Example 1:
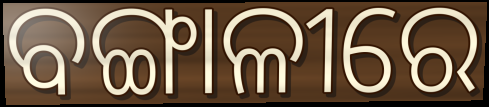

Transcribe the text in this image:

ବଙ୍ଗାଳୀରେ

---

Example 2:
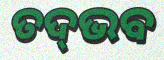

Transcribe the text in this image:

ତଦ୍‌ଭବ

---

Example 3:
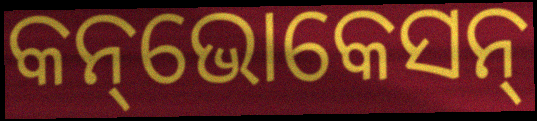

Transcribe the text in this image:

କନ୍‌ଭୋକେସନ୍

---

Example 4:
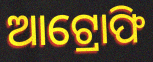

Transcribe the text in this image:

ଆଟ୍ରୋଫି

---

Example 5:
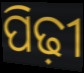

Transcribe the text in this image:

ପିଢ଼ୀ